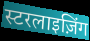
स्टरलाइज़िंग